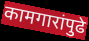
कामगारांपुढे